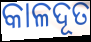
କାଳଦୂତ